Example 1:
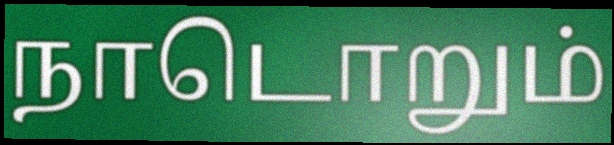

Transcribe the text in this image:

நாடொறும்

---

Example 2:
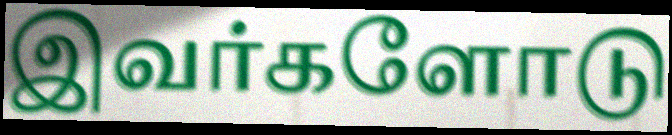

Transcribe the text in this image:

இவர்களோடு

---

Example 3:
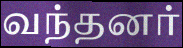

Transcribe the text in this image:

வந்தனர்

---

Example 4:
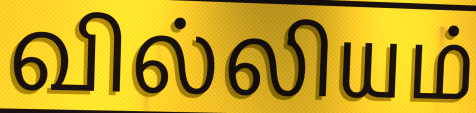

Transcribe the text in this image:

வில்லியம்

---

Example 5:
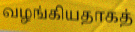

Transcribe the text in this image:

வழங்கியதாகத்